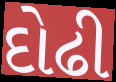
દોઢી